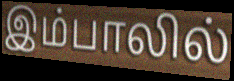
இம்பாலில்